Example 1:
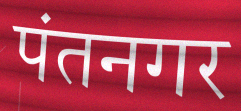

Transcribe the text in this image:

पंतनगर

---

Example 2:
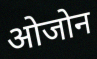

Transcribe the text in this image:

ओजोन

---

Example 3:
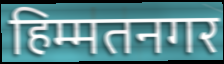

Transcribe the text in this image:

हिम्‍मतनगर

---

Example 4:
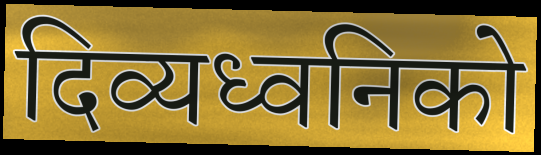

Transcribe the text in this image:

दिव्यध्वनिको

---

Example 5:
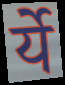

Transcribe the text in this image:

र्ये